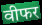
वीफर